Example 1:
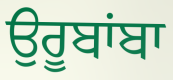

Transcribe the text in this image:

ਉਰੂਬਾਂਬਾ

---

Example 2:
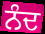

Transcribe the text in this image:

ਨੰਦ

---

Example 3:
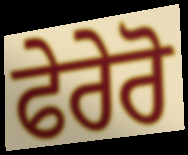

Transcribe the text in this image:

ਫੇਰੇਰੋ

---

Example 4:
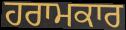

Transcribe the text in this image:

ਹਰਾਮਕਾਰ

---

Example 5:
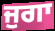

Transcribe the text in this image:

ਜੁਗਾ